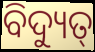
ବିଦ୍ୟୁତ୍